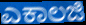
ಎಕಾಲಜಿ